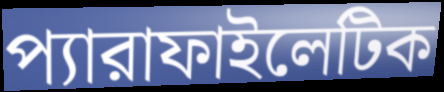
প্যারাফাইলেটিক